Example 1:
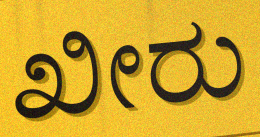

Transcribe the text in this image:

ಖೀರು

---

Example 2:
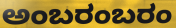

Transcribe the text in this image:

ಅಂಬರಂಬರಂ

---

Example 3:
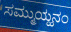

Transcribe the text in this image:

ಸಮ್ಮುಯ್ಹನಂ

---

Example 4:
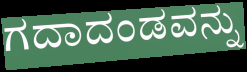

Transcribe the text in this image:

ಗದಾದಂಡವನ್ನು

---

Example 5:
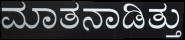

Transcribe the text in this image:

ಮಾತನಾಡಿತ್ತು